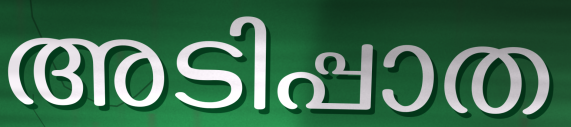
അടിപ്പാത